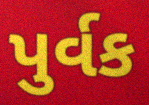
પુર્વક